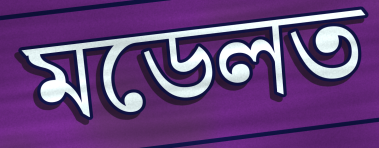
মডেলত